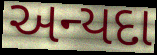
અન્યદા